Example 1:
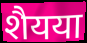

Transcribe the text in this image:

शैयया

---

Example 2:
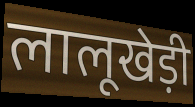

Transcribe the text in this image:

लालूखेड़ी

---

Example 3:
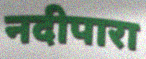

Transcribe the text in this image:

नदीपारा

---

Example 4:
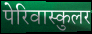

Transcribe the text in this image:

पेरिवास्कुलर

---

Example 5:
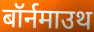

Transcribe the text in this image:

बॉर्नमाउथ